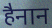
हैनान